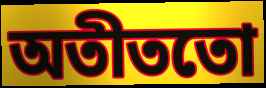
অতীততো